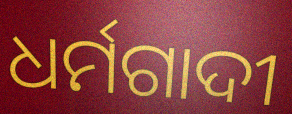
ଧର୍ମଗାଦୀ